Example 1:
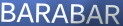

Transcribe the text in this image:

BARABAR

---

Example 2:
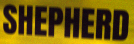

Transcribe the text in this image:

SHEPHERD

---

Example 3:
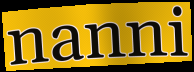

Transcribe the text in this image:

nanni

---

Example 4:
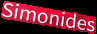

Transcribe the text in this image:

Simonides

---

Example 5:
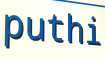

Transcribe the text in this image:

puthi